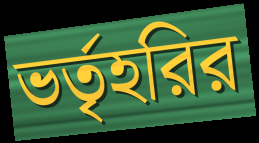
ভর্তৃহরির